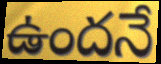
ఉందనే